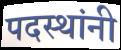
पदस्थांनी